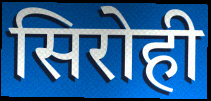
सिरोही